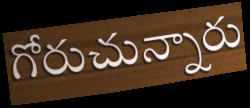
గోరుచున్నారు